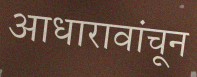
आधारावांचून